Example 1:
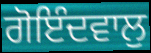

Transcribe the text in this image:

ਗੋਇੰਦਵਾਲੁ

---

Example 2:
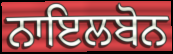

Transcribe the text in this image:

ਨਾਇਲਬੋਨ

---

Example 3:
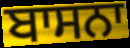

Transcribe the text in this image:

ਬਾਸਨਾ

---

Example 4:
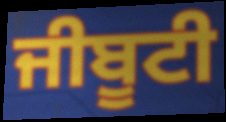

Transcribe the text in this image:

ਜੀਬੂਟੀ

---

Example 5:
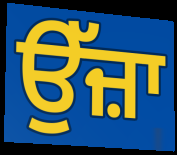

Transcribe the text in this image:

ਉੱਜ਼ਾ